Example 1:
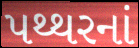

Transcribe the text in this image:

પથ્થરનાં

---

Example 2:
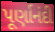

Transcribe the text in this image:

પૂર્ણાનંદી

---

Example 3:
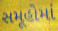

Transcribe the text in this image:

સમૂહોમાં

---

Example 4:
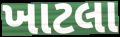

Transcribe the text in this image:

ખાટલા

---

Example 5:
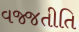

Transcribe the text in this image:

વજ્જતીતિ